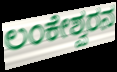
ಲಂಕೇಶ್ವರನ